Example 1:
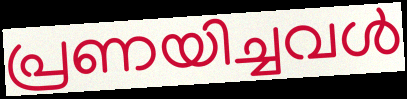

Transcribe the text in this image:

പ്രണയിച്ചവൾ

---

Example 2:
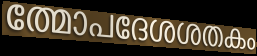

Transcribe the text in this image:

ത്മോപദേശശതകം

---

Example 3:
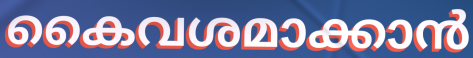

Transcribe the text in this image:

കൈവശമാക്കാൻ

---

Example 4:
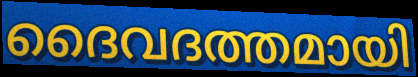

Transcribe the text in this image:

ദൈവദത്തമായി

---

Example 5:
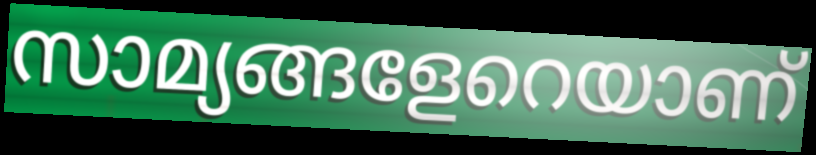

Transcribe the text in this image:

സാമ്യങ്ങളേറെയാണ്